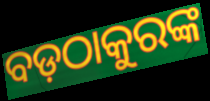
ବଡ଼ଠାକୁରଙ୍କ